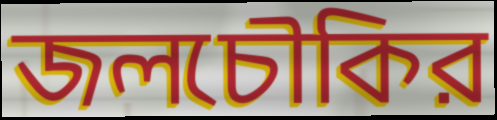
জলচৌকির